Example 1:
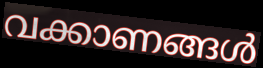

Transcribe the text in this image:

വക്കാണങ്ങൾ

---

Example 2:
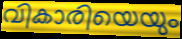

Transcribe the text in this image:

വികാരിയെയും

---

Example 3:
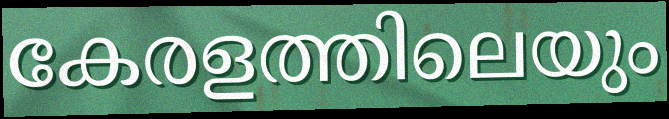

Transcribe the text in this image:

കേരളത്തിലെയും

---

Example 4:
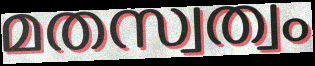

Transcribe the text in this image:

മതസ്വത്വം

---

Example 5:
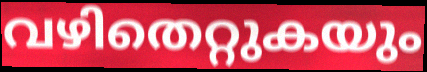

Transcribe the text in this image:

വഴിതെറ്റുകയും